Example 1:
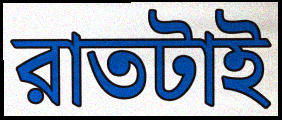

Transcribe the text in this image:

রাতটাই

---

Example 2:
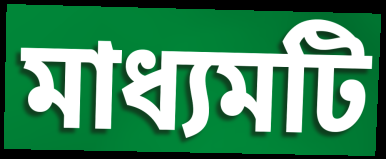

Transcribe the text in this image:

মাধ্যমটি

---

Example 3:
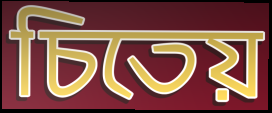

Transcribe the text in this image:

চিতেয়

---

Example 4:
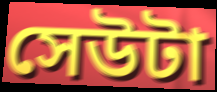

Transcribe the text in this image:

সেউটা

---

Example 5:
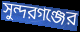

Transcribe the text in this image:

সুন্দরগঞ্জের